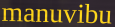
manuvibu